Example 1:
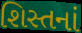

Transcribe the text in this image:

શિસ્તનાં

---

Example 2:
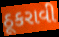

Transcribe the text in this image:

ઠૂકરાવી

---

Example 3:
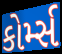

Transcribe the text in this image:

કોર્મ્સ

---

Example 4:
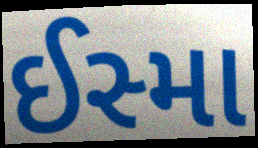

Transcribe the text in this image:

ઈસ્મા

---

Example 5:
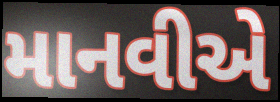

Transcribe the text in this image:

માનવીએ